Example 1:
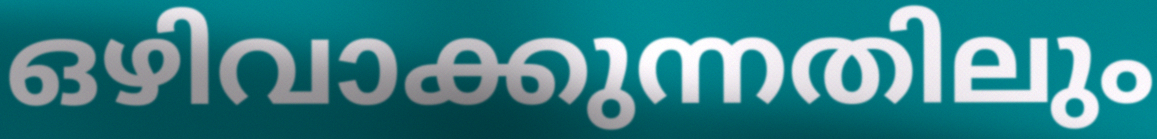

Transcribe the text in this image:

ഒഴിവാക്കുന്നതിലും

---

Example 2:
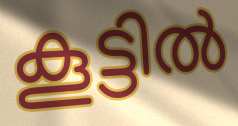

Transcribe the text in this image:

കൂട്ടിൽ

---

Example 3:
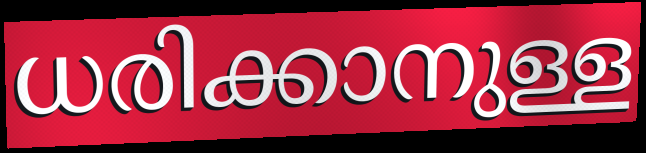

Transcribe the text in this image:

ധരിക്കാനുള്ള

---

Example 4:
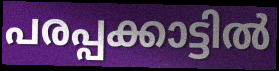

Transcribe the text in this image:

പരപ്പക്കാട്ടിൽ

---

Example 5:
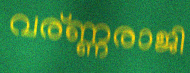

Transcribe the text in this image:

വര്ണ്ണരാജി